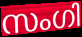
സംഗി